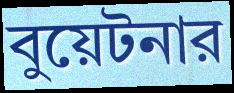
বুয়েটনার